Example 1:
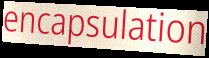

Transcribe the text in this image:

encapsulation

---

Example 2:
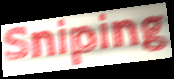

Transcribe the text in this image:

Sniping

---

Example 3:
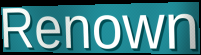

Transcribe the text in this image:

Renown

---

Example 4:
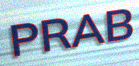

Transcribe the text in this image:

PRAB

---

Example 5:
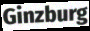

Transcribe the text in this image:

Ginzburg